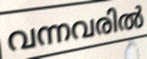
വന്നവരിൽ